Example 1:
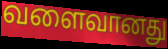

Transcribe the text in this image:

வளைவானது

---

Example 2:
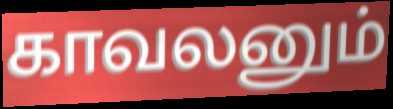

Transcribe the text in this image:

காவலனும்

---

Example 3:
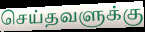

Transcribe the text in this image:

செய்தவளுக்கு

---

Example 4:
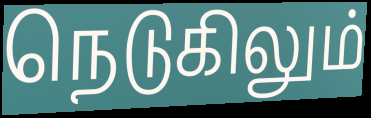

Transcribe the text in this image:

நெடுகிலும்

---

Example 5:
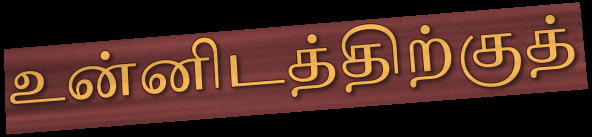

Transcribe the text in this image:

உன்னிடத்திற்குத்